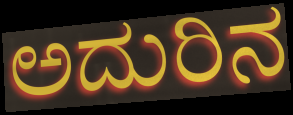
ಅದುರಿನ